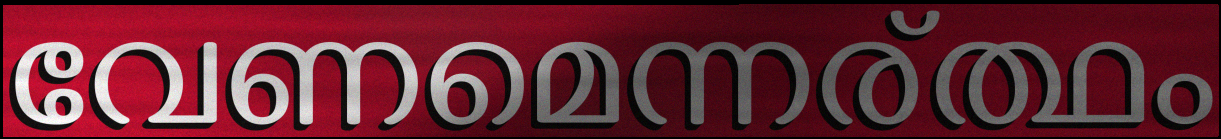
വേണമെന്നര്ത്ഥം